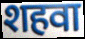
शहवा